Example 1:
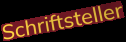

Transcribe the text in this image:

Schriftsteller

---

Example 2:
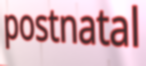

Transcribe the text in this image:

postnatal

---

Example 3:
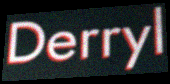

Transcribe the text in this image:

Derryl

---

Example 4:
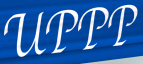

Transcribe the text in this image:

UPPP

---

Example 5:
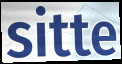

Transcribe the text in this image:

sitte